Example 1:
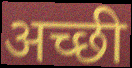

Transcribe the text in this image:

अच्‍छी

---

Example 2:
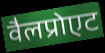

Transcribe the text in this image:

वैलप्रोएट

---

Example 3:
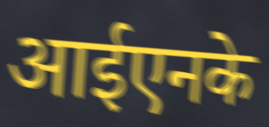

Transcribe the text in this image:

आईएनके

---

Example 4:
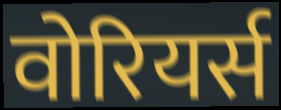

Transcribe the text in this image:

वोरियर्स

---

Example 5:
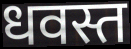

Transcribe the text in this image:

धवस्त